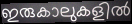
ഇരുകാലുകളിൽ